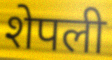
शेपली